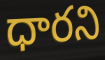
ధారని